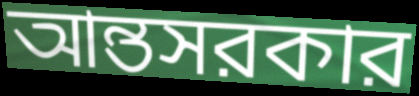
আন্তসরকার